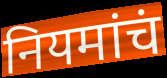
नियमांचं